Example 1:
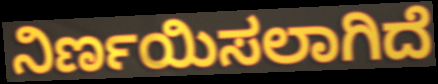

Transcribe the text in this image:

ನಿರ್ಣಯಿಸಲಾಗಿದೆ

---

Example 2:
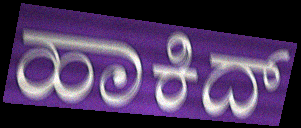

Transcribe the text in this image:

ಹಾಕಿದ್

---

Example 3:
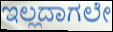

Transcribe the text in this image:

ಇಲ್ಲದಾಗಲೇ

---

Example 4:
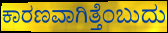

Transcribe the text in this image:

ಕಾರಣವಾಗಿತ್ತೆಂಬುದು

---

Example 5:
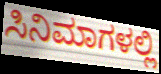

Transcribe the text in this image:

ಸಿನಿಮಾಗಳಲ್ಲಿ